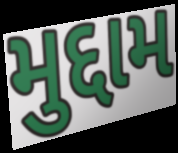
મુદ્દામ